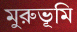
মুরুভূমি